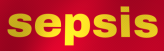
sepsis